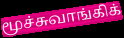
மூச்சுவாங்கிக்